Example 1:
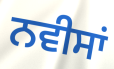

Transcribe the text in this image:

ਨਵੀਸਾਂ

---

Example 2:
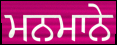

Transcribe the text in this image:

ਮਨਮਾਨੇ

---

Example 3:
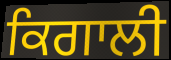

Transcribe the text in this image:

ਕਿਗਾਲੀ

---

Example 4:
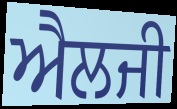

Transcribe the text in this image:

ਐਲਜੀ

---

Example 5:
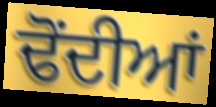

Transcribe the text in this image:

ਢੋਂਦੀਆਂ